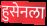
हुसेनला